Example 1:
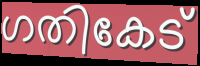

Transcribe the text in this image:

ഗതികേട്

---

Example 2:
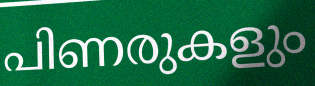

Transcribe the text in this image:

പിണരുകളും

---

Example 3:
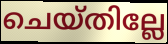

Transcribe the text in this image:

ചെയ്തില്ലേ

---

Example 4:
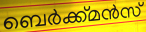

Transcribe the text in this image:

ബെർക്ക്മൻസ്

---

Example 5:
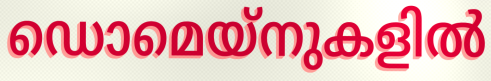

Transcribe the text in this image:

ഡൊമെയ്നുകളിൽ